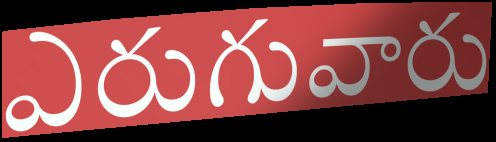
ఎరుగువారు